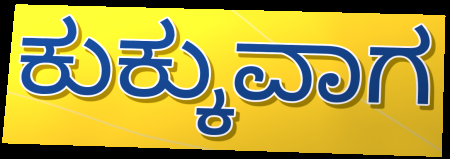
ಕುಕ್ಕುವಾಗ